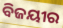
ବିଜୟୀର